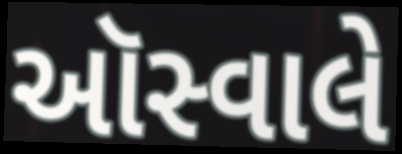
ઑસ્વાલે